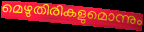
മെഴുതിരികളുമൊന്നും